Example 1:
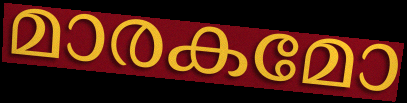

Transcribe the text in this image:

മാരകമോ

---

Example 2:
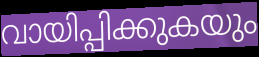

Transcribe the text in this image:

വായിപ്പിക്കുകയും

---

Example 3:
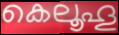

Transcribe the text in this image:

കെലൂഹൂ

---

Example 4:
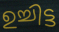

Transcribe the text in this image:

ഉച്ചിട്ട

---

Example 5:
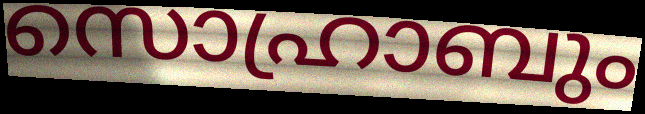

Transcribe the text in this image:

സൊഹ്രാബും